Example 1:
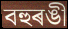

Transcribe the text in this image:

বহুৰঙী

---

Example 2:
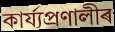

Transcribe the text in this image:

কাৰ্য্যপ্ৰণালীৰ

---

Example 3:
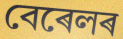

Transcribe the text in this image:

বেৰেলৰ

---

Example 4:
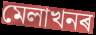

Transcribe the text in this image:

মেলাখনৰ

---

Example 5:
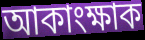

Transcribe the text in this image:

আকাংক্ষাক